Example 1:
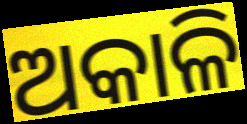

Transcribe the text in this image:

ଅକାଳି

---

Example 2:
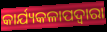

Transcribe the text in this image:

କାର୍ଯ୍ୟକଳାପଦ୍ବାରା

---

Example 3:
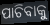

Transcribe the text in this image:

ପାଚିବାକୁ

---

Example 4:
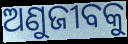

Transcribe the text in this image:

ଅଣୁଜୀବକୁ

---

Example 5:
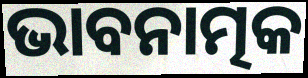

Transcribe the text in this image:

ଭାବନାତ୍ମକ